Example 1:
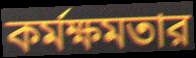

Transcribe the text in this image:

কর্মক্ষমতার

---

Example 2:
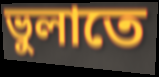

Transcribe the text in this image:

ভুলাতে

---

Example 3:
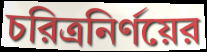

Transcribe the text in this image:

চরিত্রনির্ণয়ের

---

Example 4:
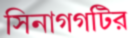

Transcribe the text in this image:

সিনাগগটির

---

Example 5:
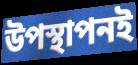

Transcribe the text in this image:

উপস্থাপনই